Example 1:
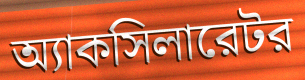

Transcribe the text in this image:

অ্যাকসিলারেটর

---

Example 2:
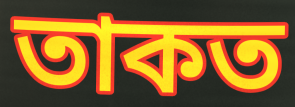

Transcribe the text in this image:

তাকত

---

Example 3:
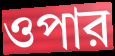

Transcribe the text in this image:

ওপার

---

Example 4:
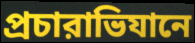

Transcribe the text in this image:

প্রচারাভিযানে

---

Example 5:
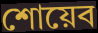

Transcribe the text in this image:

শোয়েব